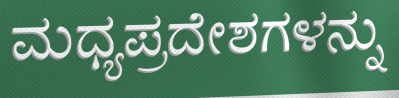
ಮಧ್ಯಪ್ರದೇಶಗಳನ್ನು